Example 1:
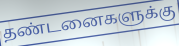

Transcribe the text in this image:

தண்டனைகளுக்கு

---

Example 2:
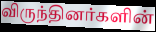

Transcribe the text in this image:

விருந்தினர்களின்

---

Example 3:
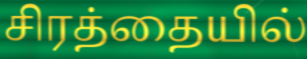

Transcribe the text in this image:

சிரத்தையில்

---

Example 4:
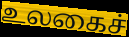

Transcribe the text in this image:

உலகைச்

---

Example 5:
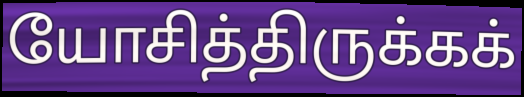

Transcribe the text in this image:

யோசித்திருக்கக்